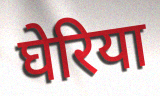
घेरिया